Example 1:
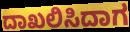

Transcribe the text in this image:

ದಾಖಲಿಸಿದಾಗ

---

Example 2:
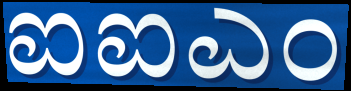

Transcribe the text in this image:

ಐಐಎಂ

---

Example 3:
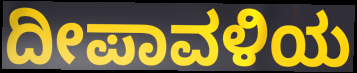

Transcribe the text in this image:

ದೀಪಾವಳಿಯ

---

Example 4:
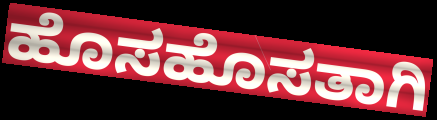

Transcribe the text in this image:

ಹೊಸಹೊಸತಾಗಿ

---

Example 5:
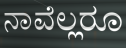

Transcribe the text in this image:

ನಾವೆಲ್ಲರೂ